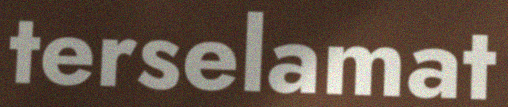
terselamat